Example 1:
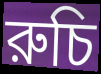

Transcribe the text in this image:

রুচি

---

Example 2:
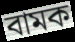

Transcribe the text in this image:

বামক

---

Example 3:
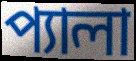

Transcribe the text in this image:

প্যালা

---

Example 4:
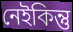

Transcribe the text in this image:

নেইকিন্তু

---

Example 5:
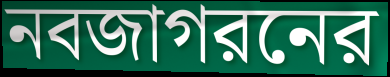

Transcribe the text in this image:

নবজাগরনের